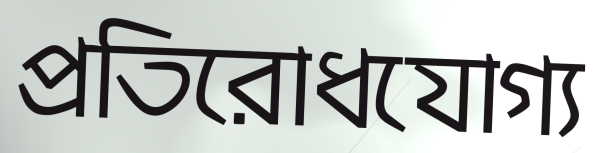
প্রতিরোধযোগ্য